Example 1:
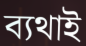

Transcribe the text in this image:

ব্যথাই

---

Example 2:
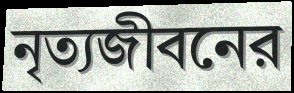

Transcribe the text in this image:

নৃত্যজীবনের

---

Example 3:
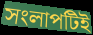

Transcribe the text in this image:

সংলাপটিই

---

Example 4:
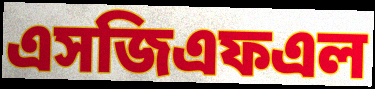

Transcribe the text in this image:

এসজিএফএল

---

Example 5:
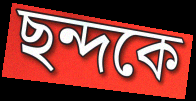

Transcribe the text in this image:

ছন্দকে